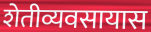
शेतीव्यवसायास